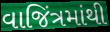
વાજિંત્રમાંથી